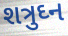
શત્રુઘ્ન